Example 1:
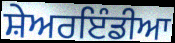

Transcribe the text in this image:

ਸ਼ੇਅਰਇੰਡੀਆ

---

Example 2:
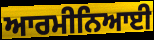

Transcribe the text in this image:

ਆਰਮੀਨਿਆਈ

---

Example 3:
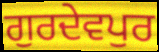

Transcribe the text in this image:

ਗੁਰਦੇਵਪੁਰ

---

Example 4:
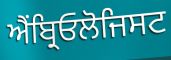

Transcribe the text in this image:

ਐਂਬ੍ਰਿਓਲੋਜਿਸਟ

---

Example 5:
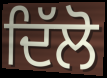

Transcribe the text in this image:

ਦਿੱਲੋ